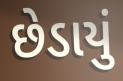
છેડાયું